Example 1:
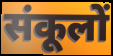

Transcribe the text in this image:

संकूलों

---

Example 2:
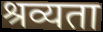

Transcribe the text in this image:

श्रव्यता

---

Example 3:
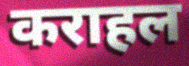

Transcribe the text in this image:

कराहल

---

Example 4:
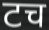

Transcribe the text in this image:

टच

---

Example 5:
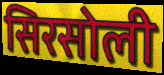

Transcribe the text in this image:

सिरसोली